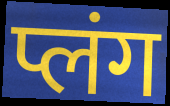
प्लंग